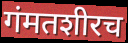
गंमतशीरच